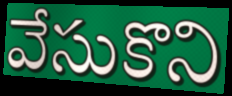
వేసుకొని